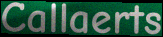
Callaerts